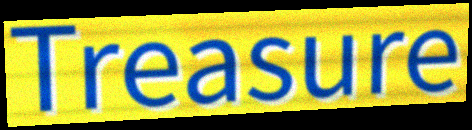
Treasure